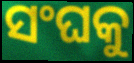
ସଂଘକୁ